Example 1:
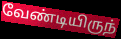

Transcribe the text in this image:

வேண்டியிருந்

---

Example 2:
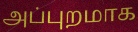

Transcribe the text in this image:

அப்புறமாக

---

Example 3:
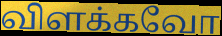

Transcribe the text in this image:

விளக்கவோ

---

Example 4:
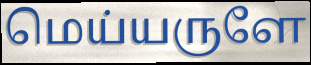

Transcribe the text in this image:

மெய்யருளே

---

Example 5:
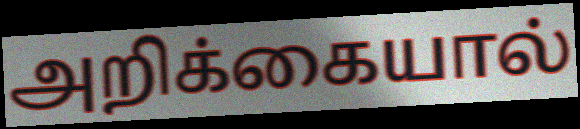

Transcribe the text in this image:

அறிக்கையால்